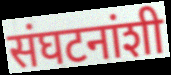
संघटनांशी